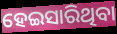
ହେଇସାରିଥିବା